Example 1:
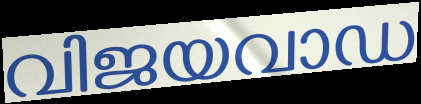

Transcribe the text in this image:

വിജയവാഡ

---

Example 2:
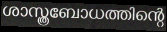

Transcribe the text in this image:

ശാസ്ത്രബോധത്തിന്റെ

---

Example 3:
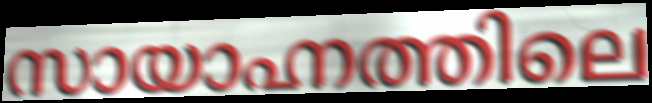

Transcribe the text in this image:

സായാഹ്നത്തിലെ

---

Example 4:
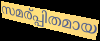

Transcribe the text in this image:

സമര്പ്പിതമായ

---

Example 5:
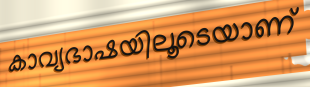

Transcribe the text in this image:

കാവ്യഭാഷയിലൂടെയാണ്